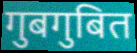
गुबगुबित